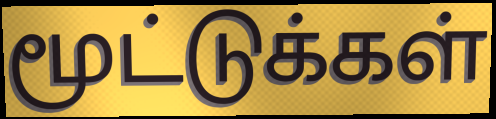
மூட்டுக்கள்